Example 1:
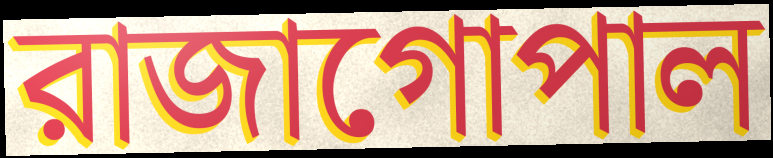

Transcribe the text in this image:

রাজাগোপাল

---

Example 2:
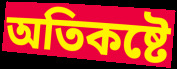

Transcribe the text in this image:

অতিকষ্টে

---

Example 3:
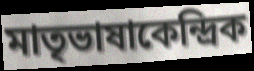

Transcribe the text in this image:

মাতৃভাষাকেন্দ্রিক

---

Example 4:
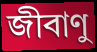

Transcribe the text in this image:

জীবাণু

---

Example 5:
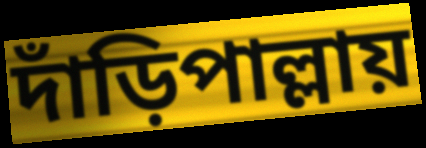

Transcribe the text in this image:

দাঁড়িপাল্লায়